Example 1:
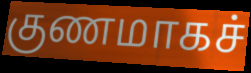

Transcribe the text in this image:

குணமாகச்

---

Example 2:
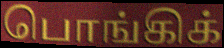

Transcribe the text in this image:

பொங்கிக்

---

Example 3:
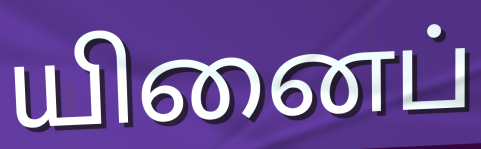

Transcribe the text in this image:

யினைப்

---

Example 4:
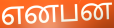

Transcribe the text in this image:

எனபன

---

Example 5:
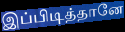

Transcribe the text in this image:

இப்பிடித்தானே